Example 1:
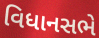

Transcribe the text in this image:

વિધાનસભે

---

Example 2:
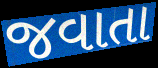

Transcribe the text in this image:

જવાતા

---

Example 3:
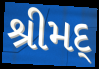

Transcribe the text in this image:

શ્રીમદ્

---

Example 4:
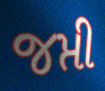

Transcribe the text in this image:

જપ્તી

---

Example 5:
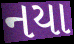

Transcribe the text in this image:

નયા